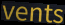
vents